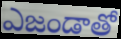
ఎజండాతో